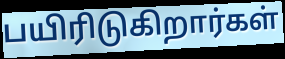
பயிரிடுகிறார்கள்